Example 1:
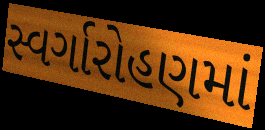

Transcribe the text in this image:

સ્વર્ગારોહણમાં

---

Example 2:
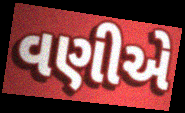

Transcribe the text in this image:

વણીએ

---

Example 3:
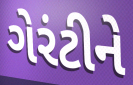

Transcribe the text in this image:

ગેરંટીને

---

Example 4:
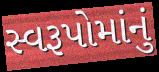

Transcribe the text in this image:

સ્વરૂપોમાંનું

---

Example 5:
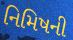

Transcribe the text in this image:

નિમિષની